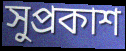
সুপ্রকাশ